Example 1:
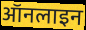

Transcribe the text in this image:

ऑनलाइन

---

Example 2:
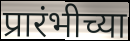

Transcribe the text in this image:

प्रारंभीच्या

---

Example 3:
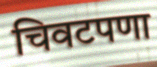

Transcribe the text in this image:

चिवटपणा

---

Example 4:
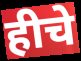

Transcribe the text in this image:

हीचे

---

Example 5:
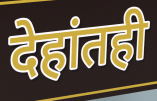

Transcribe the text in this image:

देहांतही